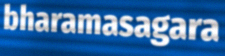
bharamasagara